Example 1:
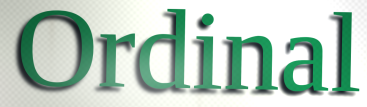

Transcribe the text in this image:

Ordinal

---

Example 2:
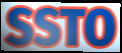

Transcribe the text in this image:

SSTO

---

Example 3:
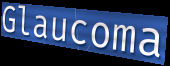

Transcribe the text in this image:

Glaucoma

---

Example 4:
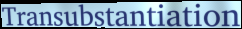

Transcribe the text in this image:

Transubstantiation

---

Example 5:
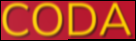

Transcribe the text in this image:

CODA